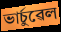
ভাৰ্চুৱেল